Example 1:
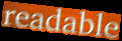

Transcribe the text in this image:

readable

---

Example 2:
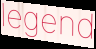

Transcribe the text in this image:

legend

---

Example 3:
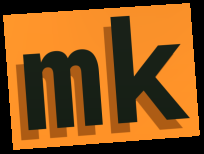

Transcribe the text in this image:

mk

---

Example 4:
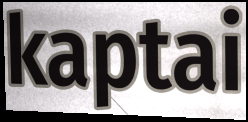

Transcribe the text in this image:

kaptai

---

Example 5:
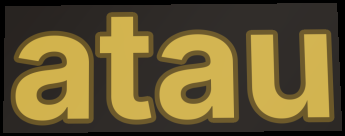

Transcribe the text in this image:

atau